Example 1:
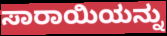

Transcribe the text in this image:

ಸಾರಾಯಿಯನ್ನು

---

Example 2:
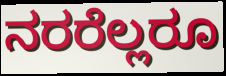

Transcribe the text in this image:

ನರರೆಲ್ಲರೂ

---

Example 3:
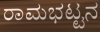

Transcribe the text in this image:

ರಾಮಭಟ್ಟನ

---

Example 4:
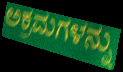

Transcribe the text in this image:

ಅಕ್ರಮಗಳನ್ನು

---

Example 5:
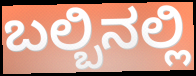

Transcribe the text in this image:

ಬಲ್ಬಿನಲ್ಲಿ